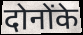
दोनोंके